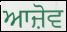
ਆਜ਼ੋਵ